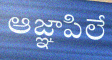
ఆజ్ఞాపిలే